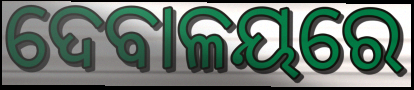
ଦେବାଳୟରେ